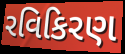
રવિકિરણ